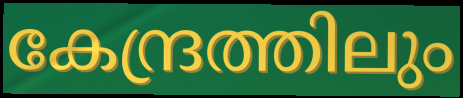
കേന്ദ്രത്തിലും